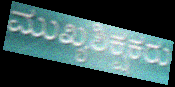
ಮುಖ್ಯಶಿಕ್ಷಕರು